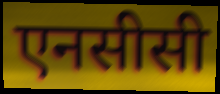
एनसीसी